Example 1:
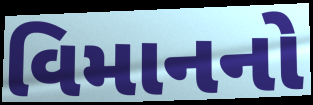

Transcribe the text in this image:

વિમાનનો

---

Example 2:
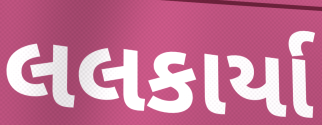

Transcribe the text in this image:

લલકાર્યા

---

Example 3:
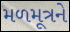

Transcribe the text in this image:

મળમૂત્રને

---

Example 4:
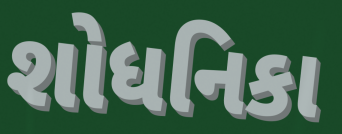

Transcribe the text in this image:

શોધનિકા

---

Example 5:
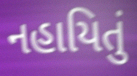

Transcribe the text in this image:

નહાયિતું